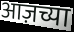
आज़च्या